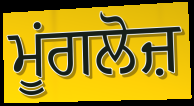
ਮੂਂਗਲੋਜ਼